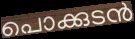
പൊക്കുടൻ